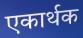
एकार्थक